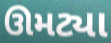
ઊમટ્યા